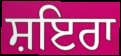
ਸ਼ਇਰਾ